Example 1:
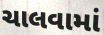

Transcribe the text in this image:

ચાલવામાં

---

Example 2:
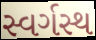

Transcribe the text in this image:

સ્વર્ગસ્થ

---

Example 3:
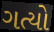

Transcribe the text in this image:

ગત્યો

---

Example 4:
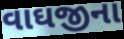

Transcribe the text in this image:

વાઘજીના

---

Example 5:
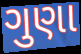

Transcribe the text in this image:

ગુણા